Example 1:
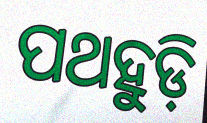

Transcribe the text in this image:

ପଥହୁଡ଼ି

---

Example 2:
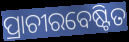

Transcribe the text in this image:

ପ୍ରାଚୀରବେଷ୍ଟିତ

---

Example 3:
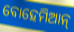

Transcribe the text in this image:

ବୋହେମିଆନ୍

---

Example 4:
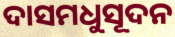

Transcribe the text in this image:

ଦାସମଧୁସୂଦନ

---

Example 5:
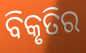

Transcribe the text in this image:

ବିକୃତିର